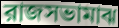
রাজসভামাঝ